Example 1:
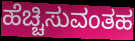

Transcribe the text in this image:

ಹೆಚ್ಚಿಸುವಂತಹ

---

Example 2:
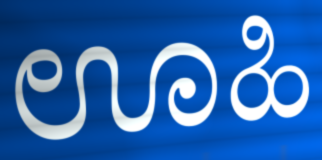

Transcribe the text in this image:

ಊಹಿ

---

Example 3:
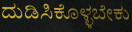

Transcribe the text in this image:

ದುಡಿಸಿಕೊಳ್ಳಬೇಕು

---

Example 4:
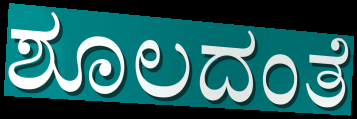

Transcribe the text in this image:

ಶೂಲದಂತೆ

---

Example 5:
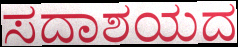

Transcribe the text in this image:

ಸದಾಶಯದ